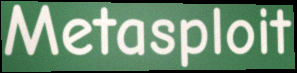
Metasploit